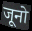
जूनो